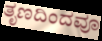
ತೃಣದಿಂದವೂ